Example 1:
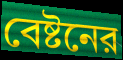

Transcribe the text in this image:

বেষ্টনের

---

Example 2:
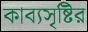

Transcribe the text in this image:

কাব্যসৃষ্টির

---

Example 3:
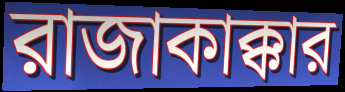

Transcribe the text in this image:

রাজাকাক্কার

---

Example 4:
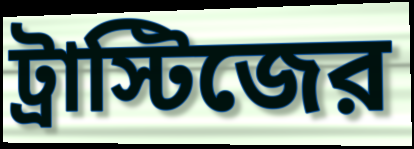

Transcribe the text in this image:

ট্রাস্টিজের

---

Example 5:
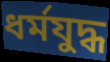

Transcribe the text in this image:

ধর্মযুদ্ধ